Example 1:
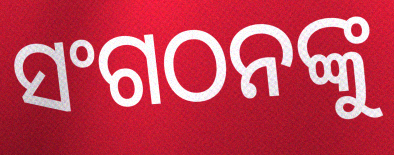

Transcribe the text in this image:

ସଂଗଠନଙ୍କୁ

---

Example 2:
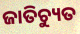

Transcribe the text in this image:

ଜାତିଚ୍ୟୁତ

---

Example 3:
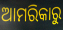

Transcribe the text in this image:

ଆମରିକାରୁ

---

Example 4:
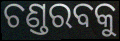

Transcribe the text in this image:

ଚଣ୍ଡରବକୁ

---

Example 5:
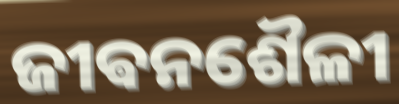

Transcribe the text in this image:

ଜୀଵନଶୈଳୀ